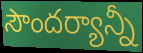
సౌందర్యాన్నీ